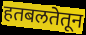
हतबलतेतून